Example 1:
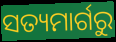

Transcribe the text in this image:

ସତ୍ୟମାର୍ଗରୁ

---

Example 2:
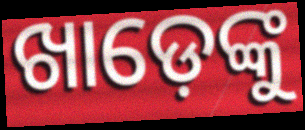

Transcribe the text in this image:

ଖାଡ଼େଙ୍କୁ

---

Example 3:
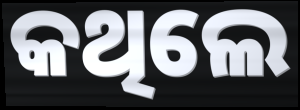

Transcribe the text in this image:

କଥିଲେ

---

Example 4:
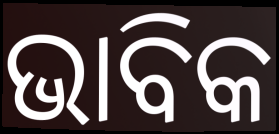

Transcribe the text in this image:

ଭାବିକ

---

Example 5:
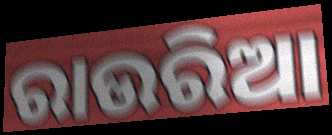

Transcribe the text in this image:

ରାଉରିଆ